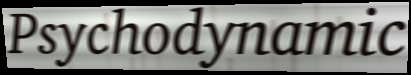
Psychodynamic